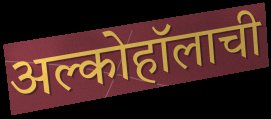
अल्कोहॉलाची